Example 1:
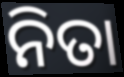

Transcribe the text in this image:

ନିତା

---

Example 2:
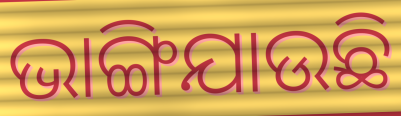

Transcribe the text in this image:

ଭାଙ୍ଗିଯାଉଛି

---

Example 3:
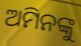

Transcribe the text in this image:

ଅମିନଙ୍କୁ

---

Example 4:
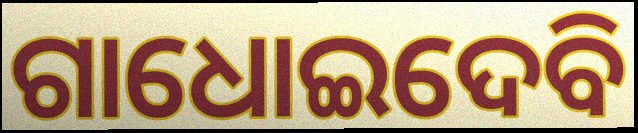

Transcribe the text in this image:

ଗାଧୋଇଦେବି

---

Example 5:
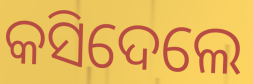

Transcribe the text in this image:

କସିଦେଲେ